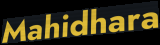
Mahidhara